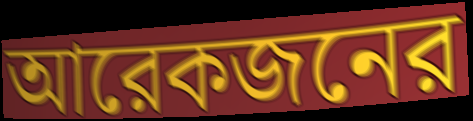
আরেকজনের